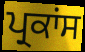
ਪ੍ਰਕਾਂਸ